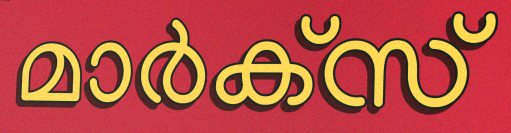
മാർക്‌സ്